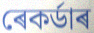
ৰেকৰ্ডাৰ